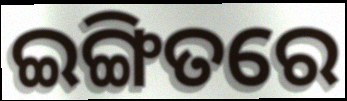
ଇଙ୍ଗିତରେ